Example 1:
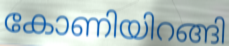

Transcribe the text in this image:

കോണിയിറങ്ങി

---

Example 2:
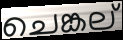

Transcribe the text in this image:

ചെങ്കല്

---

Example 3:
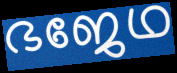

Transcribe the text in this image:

ഭജേഥ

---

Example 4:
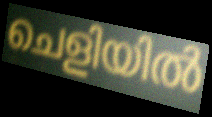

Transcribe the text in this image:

ചെളിയിൽ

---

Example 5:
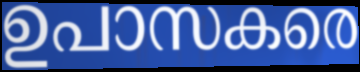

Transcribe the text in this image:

ഉപാസകരെ